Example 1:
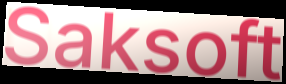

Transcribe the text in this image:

Saksoft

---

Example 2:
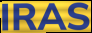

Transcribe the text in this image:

IRAS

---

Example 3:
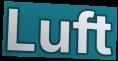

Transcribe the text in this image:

Luft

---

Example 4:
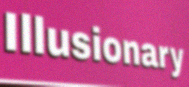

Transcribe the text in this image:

Illusionary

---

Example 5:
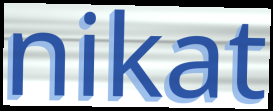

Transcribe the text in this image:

nikat